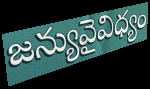
జన్యువైవిధ్యం